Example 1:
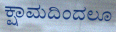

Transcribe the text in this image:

ಕ್ಷಾಮದಿಂದಲೂ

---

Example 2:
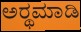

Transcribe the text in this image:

ಅರ್‍ಥಮಾಡಿ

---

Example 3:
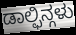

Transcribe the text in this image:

ಡಾಲ್ಫಿನ್ಗಳು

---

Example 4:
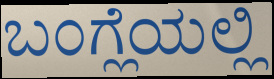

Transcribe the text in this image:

ಬಂಗ್ಲೆಯಲ್ಲಿ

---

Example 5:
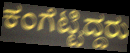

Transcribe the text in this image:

ಕಂಗೆಟ್ಟಿದ್ದರು